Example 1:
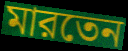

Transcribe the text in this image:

মারতেন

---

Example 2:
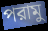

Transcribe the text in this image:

পরামু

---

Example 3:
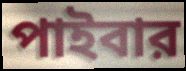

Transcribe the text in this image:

পাইবার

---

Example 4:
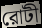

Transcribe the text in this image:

রোটী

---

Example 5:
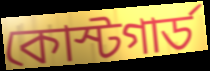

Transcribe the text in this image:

কোস্টগার্ড